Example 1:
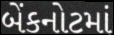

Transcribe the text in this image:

બેંકનોટમાં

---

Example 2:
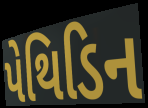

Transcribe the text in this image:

પેથિડિન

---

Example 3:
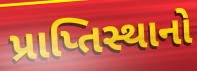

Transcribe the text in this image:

પ્રાપ્તિસ્થાનો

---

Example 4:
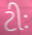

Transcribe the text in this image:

ટીઃ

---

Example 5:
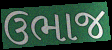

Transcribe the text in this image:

ઉભાજ